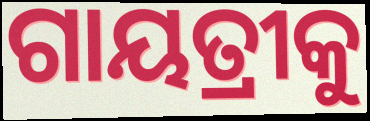
ଗାୟତ୍ରୀକୁ